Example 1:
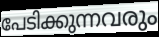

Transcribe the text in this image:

പേടിക്കുന്നവരും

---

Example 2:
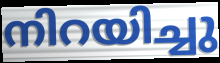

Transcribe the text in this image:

നിറയിച്ചു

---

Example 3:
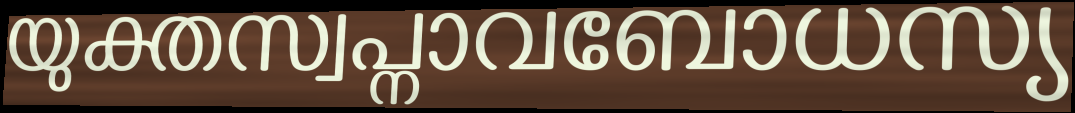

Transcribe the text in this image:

യുക്തസ്വപ്നാവബോധസ്യ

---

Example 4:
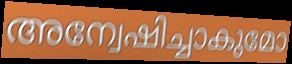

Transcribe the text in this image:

അന്വേഷിച്ചാകുമോ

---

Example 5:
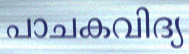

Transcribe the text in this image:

പാചകവിദ്യ